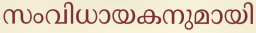
സംവിധായകനുമായി